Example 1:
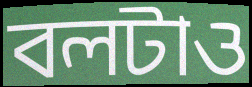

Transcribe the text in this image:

বলটাও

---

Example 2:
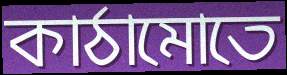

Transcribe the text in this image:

কাঠামোতে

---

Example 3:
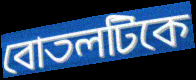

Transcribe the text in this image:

বোতলটিকে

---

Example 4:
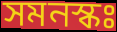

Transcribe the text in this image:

সমনস্কঃ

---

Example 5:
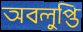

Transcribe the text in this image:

অবলুপ্তি